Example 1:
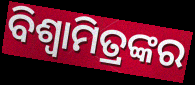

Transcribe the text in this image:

ବିଶ୍ବାମିତ୍ରଙ୍କର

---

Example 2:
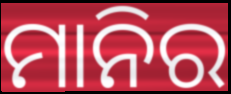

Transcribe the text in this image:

ମାନିର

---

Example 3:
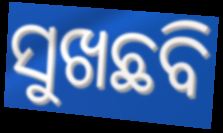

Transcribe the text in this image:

ସୁଖଛବି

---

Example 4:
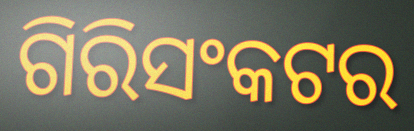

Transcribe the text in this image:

ଗିରିସଂକଟର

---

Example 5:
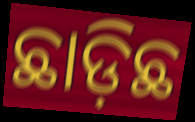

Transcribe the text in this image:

ଛାଡ଼ିଛ